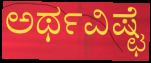
ಅರ್ಥವಿಷ್ಟೆ